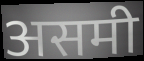
असमी